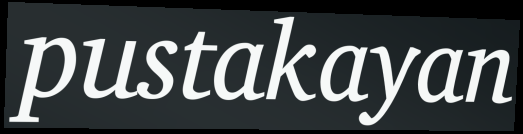
pustakayan